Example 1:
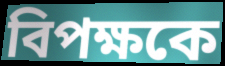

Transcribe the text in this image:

বিপক্ষকে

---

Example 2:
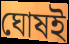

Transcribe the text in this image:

ঘোষই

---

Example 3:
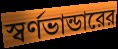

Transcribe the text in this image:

স্বর্ণভান্ডারের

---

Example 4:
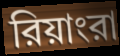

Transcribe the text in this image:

রিয়াংরা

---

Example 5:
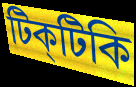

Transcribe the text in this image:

টিক্‌টিকি